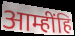
आम्हींहि